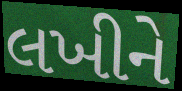
લખીને